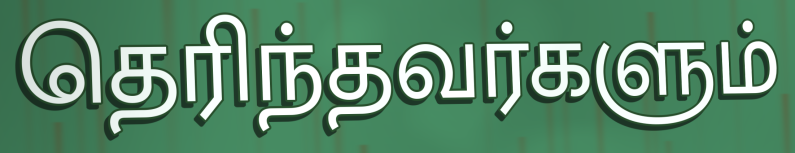
தெரிந்தவர்களும்